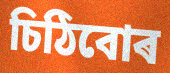
চিঠিবোৰ